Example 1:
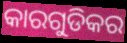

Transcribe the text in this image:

କାରଗୁଡିକର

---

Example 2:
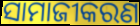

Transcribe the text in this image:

ସାମାଜୀକରଣ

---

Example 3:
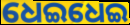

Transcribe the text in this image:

ଧେଇଧେଇ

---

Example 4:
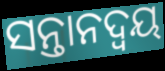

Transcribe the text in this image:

ସନ୍ତାନଦ୍ୱୟ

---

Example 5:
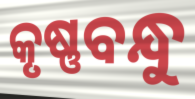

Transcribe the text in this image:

କୃଷ୍ଣବନ୍ଧୁ